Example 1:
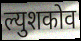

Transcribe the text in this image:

ल्युशकोव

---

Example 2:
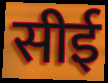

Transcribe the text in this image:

सीई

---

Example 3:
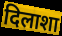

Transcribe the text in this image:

दिलाशा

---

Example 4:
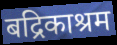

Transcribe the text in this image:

बद्रिकाश्रम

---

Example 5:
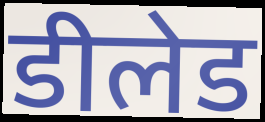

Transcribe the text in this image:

डीलेड